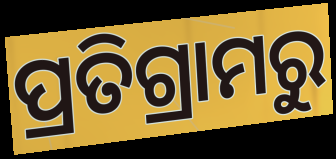
ପ୍ରତିଗ୍ରାମରୁ